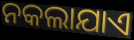
ନକଲାଯାଏ